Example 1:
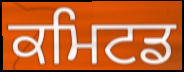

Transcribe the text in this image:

ਕਮਿਟਡ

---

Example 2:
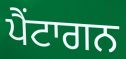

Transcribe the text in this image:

ਪੈਂਟਾਗਨ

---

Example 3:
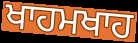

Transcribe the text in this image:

ਖਾਹਮਖਾਹ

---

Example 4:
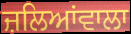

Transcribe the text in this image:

ਜ਼ਲਿਆਂਵਾਲਾ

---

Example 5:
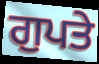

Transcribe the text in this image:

ਗੁਪਤੇ